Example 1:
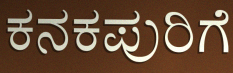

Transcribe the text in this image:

ಕನಕಪುರಿಗೆ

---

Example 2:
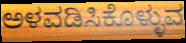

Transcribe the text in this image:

ಅಳವಡಿಸಿಕೊಳ್ಳುವ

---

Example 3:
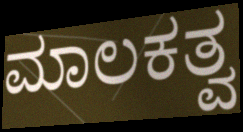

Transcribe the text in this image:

ಮಾಲಕತ್ವ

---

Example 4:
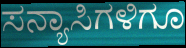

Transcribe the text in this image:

ಸನ್ಯಾಸಿಗಳಿಗೂ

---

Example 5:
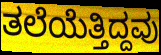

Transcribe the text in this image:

ತಲೆಯೆತ್ತಿದ್ದವು